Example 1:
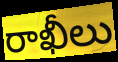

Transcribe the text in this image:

రాఖీలు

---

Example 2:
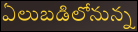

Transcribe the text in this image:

ఏలుబడిలోనున్న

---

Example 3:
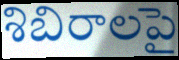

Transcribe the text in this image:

శిబిరాలపై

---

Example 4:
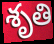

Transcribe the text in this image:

శృతి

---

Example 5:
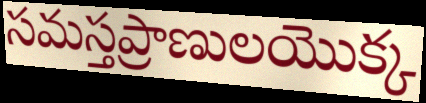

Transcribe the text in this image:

సమస్తప్రాణులయొక్క